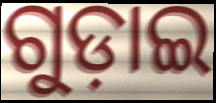
ଗୁଡ଼ାଇ